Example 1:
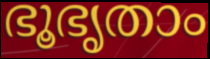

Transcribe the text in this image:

ഭൂഭൃതാം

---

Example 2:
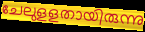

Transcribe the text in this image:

ചേലുളളതായിരുന്നു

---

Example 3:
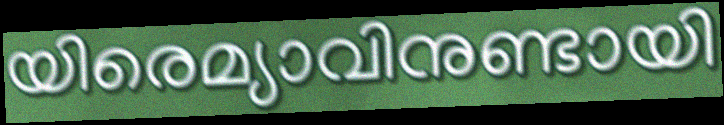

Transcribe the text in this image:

യിരെമ്യാവിനുണ്ടായി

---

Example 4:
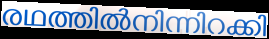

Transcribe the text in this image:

രഥത്തിൽനിന്നിറക്കി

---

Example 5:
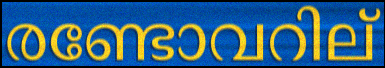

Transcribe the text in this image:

രണ്ടോവറില്